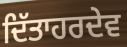
ਦਿੱਤਾਹਰਦੇਵ